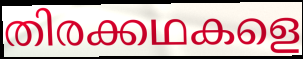
തിരക്കഥകളെ